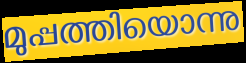
മുപ്പത്തിയൊന്നു